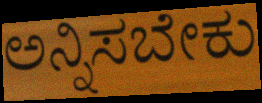
ಅನ್ನಿಸಬೇಕು